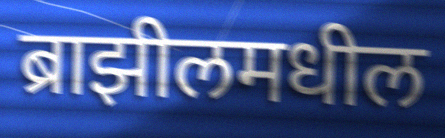
ब्राझीलमधील